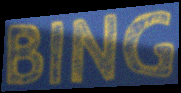
BING